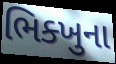
ભિક્ખુના